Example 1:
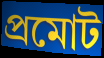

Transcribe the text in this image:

প্রমোট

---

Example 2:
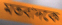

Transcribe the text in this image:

মতবাদকে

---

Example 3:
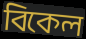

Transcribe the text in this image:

বিকেল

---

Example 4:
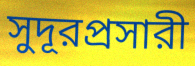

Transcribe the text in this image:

সুদূরপ্রসারী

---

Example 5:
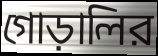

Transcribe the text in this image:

গোড়ালির